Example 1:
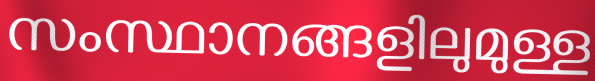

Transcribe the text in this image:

സംസ്ഥാനങ്ങളിലുമുള്ള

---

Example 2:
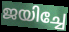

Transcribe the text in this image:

ജയിച്ചേ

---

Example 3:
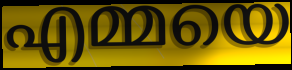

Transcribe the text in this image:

എമ്മയെ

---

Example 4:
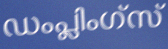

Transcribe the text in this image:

ഡംപ്ലിംഗ്സ്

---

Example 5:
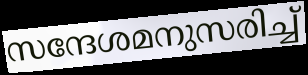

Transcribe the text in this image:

സന്ദേശമനുസരിച്ച്